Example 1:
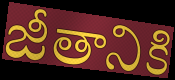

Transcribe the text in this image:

జీతానికి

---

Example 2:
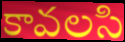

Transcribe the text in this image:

కావలసి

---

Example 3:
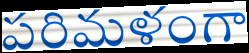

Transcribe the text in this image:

పరిమళంగా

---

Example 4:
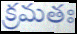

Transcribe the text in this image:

క్రమతః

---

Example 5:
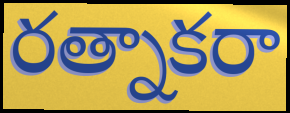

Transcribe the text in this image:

రత్నాకరా